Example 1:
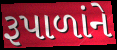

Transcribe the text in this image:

રૂપાળાંને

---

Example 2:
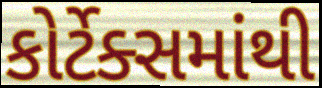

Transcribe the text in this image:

કોર્ટેક્સમાંથી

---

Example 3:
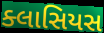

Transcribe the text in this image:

ક્લાસિયસ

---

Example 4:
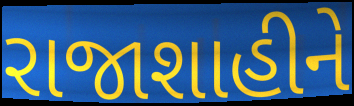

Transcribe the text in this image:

રાજાશાહીને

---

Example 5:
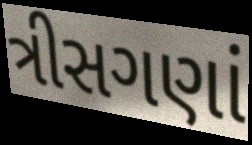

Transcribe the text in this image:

ત્રીસગણાં